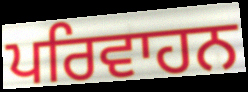
ਪਰਿਵਾਹਨ